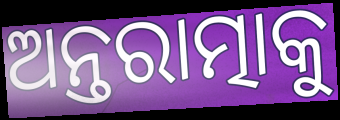
ଅନ୍ତରାତ୍ମାକୁ